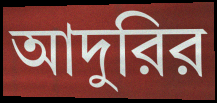
আদুরির